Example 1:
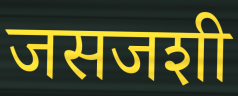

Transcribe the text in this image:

जसजशी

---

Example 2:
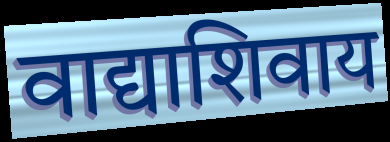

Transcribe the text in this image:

वाद्याशिवाय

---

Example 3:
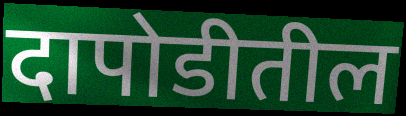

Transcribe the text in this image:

दापोडीतील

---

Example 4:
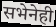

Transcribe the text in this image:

सभेनेही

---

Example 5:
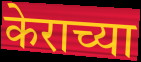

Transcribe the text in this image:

केराच्या